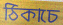
ঠিকাচে